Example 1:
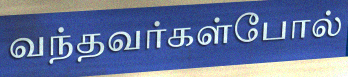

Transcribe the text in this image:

வந்தவர்கள்போல்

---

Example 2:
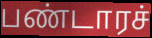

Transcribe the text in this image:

பண்டாரச்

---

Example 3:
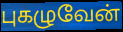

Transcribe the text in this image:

புகழுவேன்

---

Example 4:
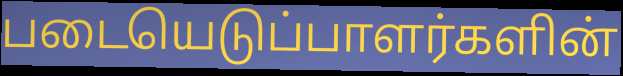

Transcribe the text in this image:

படையெடுப்பாளர்களின்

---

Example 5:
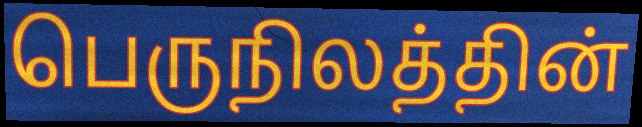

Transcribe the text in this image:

பெருநிலத்தின்